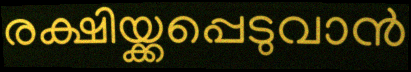
രക്ഷിയ്ക്കപ്പെടുവാൻ